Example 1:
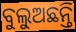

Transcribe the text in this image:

ବୁଲୁଅଛନ୍ତି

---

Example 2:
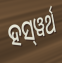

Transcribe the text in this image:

ହସ୍‌ୱର୍ଥ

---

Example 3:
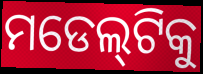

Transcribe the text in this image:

ମଡେଲ୍‌ଟିକୁ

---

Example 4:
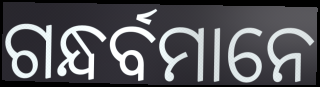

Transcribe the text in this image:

ଗନ୍ଧର୍ବମାନେ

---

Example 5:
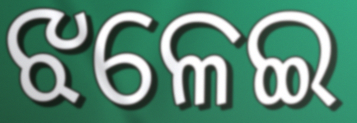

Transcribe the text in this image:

ଝଳେଇ